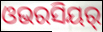
ଓଭରସିୟର୍